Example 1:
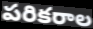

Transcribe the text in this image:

పరికరాల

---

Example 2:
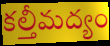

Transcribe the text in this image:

కల్తీమద్యం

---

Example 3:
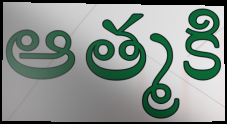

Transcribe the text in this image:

ఆత్మకి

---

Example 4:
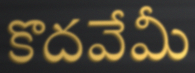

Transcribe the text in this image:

కొదవేమీ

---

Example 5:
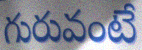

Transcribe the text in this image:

గురువంటే